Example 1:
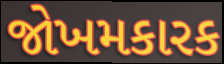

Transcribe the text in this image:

જોખમકારક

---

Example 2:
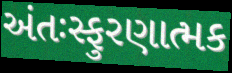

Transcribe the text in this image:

અંતઃસ્ફુરણાત્મક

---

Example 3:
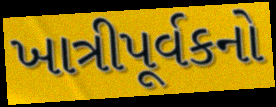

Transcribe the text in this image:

ખાત્રીપૂર્વકનો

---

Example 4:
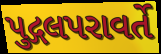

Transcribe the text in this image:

પુદ્ગલપરાવર્તે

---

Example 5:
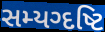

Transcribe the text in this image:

સમ્યગ્દષ્ટિ